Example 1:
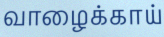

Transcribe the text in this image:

வாழைக்காய்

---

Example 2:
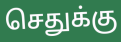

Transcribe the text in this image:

செதுக்கு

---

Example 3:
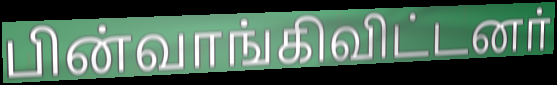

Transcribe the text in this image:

பின்வாங்கிவிட்டனர்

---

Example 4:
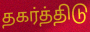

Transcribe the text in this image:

தகர்த்திடு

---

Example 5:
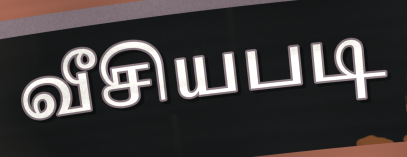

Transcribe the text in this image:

வீசியபடி